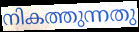
നികത്തുന്നതു